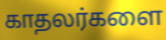
காதலர்களை